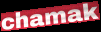
chamak